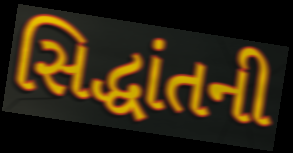
સિદ્ધાંતની